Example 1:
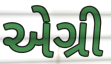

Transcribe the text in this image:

એગ્રી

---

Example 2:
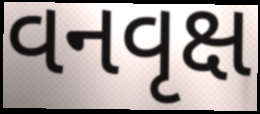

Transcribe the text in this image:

વનવૃક્ષ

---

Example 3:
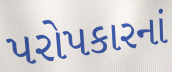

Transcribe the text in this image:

પરોપકારનાં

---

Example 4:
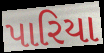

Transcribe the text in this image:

પારિયા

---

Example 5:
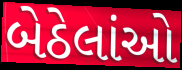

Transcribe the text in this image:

બેઠેલાંઓ